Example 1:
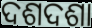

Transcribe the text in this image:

ଦଶଦଶା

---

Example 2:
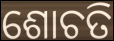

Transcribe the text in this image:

ଶୋଚତି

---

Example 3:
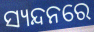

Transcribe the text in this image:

ସ୍ୟନ୍ଦନରେ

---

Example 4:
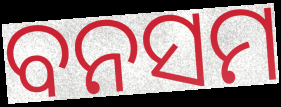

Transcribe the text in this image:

ବନସମ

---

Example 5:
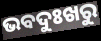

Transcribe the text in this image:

ଭବଦୁଃଖରୁ